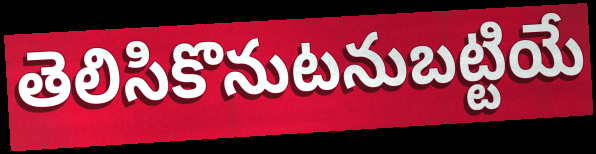
తెలిసికొనుటనుబట్టియే